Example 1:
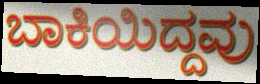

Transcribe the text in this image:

ಬಾಕಿಯಿದ್ದವು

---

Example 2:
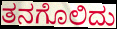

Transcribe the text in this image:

ತನಗೊಲಿದು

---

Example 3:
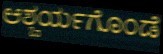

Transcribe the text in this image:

ಆಶ್ಚರ್ಯಗೊಂಡೆ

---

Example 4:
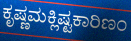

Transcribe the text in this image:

ಕೃಷ್ಣಮಕ್ಲಿಷ್ಟಕಾರಿಣಂ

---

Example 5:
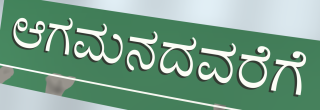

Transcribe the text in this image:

ಆಗಮನದವರೆಗೆ